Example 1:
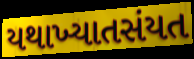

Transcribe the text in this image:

યથાખ્યાતસંયત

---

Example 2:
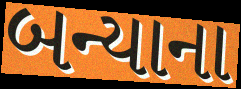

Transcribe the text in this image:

બન્યાના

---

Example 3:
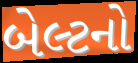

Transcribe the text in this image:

બેલ્ટનો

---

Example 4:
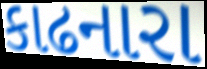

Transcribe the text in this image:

કાઢનારા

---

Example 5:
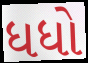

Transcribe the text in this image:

ધધો